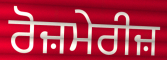
ਰੋਜ਼ਮੇਰੀਜ਼